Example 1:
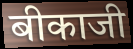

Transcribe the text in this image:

बीकाजी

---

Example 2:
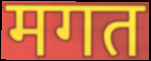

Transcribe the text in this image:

मगत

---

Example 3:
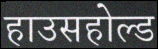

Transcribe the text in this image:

हाउसहोल्ड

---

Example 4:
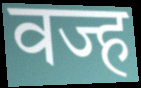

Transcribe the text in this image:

वज्ह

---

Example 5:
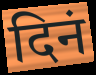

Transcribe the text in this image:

दिनं